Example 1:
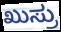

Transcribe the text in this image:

ಖುಸ್ರು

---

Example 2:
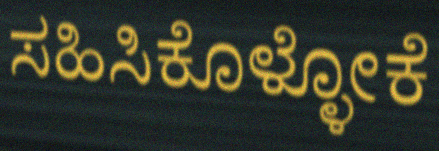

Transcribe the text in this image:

ಸಹಿಸಿಕೊಳ್ಳೋಕೆ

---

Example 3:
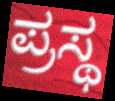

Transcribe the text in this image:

ಪ್ರಸ್ಥ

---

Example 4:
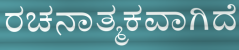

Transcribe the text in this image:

ರಚನಾತ್ಮಕವಾಗಿದೆ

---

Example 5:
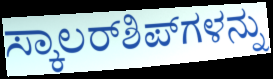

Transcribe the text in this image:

ಸ್ಕಾಲರ್‌ಶಿಪ್‌ಗಳನ್ನು